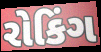
રોકિંગ